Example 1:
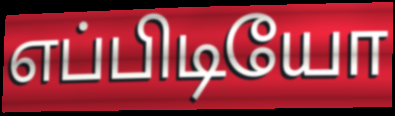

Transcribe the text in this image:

எப்பிடியோ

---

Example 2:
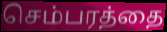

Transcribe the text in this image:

செம்பரத்தை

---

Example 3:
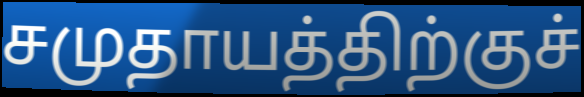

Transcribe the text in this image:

சமுதாயத்திற்குச்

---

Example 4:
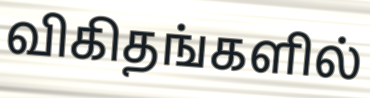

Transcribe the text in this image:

விகிதங்களில்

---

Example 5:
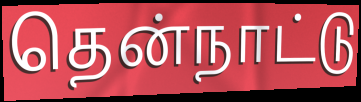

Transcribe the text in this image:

தென்நாட்டு